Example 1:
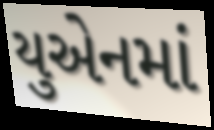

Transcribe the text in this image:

યુએનમાં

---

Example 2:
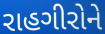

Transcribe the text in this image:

રાહગીરોને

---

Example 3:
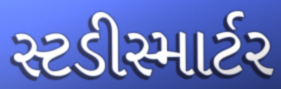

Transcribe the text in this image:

સ્ટડીસ્માર્ટર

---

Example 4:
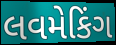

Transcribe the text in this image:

લવમેકિંગ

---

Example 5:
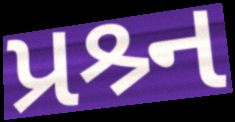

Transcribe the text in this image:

પ્રશ્ર્ન